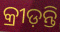
କ୍ରୀଡ଼ନ୍ତି